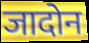
जादोन